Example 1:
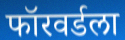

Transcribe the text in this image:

फॉरवर्डला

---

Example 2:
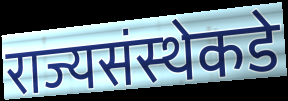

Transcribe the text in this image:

राज्यसंस्थेकडे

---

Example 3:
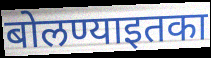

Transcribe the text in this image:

बोलण्याइतका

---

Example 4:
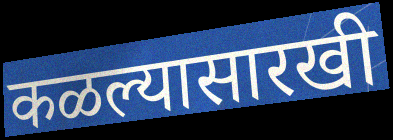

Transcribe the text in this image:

कळल्यासारखी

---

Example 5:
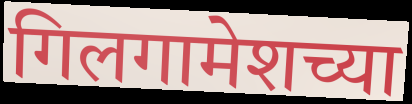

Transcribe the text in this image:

गिलगामेशच्या